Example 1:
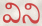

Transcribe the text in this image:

విని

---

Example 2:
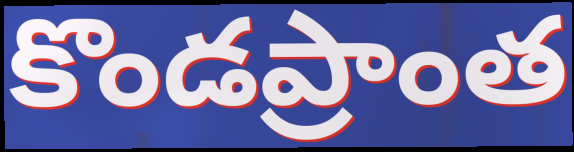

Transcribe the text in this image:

కొండప్రాంత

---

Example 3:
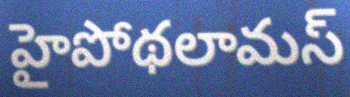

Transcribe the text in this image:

హైపోథలామస్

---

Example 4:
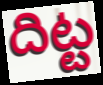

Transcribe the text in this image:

దిట్ట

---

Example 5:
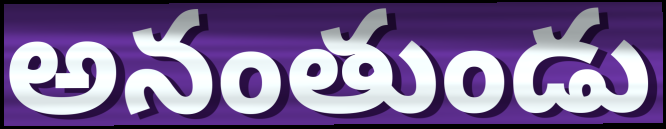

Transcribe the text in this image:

అనంతుండు